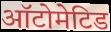
ऑटोमेटिड